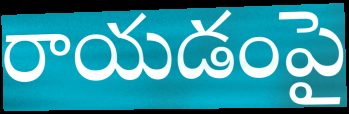
రాయడంపై